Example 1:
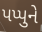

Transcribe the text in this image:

પપ્પુને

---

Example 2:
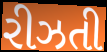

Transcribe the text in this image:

રીઝતી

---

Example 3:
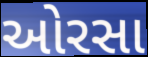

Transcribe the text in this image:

ઓરસા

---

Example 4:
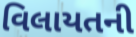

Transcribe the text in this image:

વિલાયતની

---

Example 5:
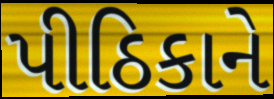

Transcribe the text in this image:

પીઠિકાને